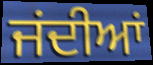
ਜਂਦੀਆਂ